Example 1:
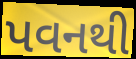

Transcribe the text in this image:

પવનથી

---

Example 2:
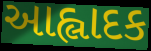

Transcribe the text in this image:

આહ્લાદક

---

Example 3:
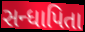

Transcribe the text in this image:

સન્ધાપિતા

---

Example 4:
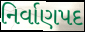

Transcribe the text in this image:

નિર્વાણપદ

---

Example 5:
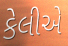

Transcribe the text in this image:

કેલીએ